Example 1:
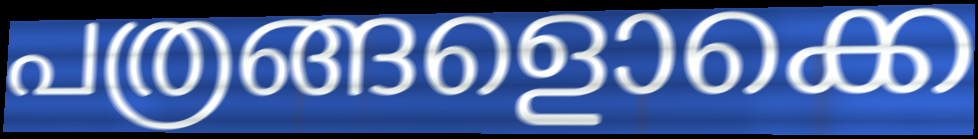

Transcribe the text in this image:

പത്രങ്ങളൊക്കെ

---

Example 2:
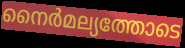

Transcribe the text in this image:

നൈർമല്യത്തോടെ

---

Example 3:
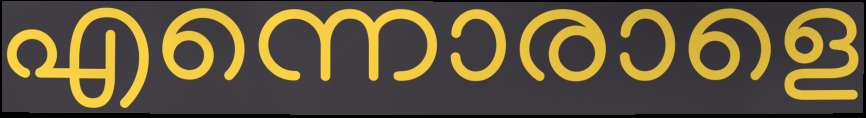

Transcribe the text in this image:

എന്നൊരാളെ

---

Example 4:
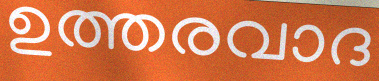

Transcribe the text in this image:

ഉത്തരവാദ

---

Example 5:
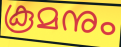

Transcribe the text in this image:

കൂമനും